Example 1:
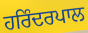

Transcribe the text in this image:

ਹਰਿੰਦਰਪਾਲ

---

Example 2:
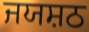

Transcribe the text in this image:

ਜਯਸ਼ਠ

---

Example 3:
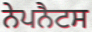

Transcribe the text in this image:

ਨੇਪਨੈਟਸ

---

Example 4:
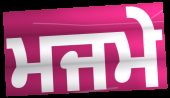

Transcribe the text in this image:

ਮਜਮੇ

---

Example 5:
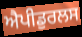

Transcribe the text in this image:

ਐਪੀਡੁਰਲਸ